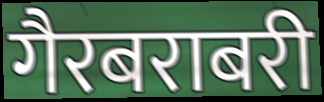
गैरबराबरी